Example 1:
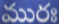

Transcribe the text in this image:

మురః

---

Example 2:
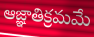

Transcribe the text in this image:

ఆజ్ఞాతిక్రమమే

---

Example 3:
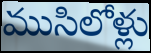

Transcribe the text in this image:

ముసిలోళ్లు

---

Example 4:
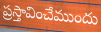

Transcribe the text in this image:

ప్రస్తావించేముందు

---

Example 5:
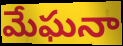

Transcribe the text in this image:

మేఘనా